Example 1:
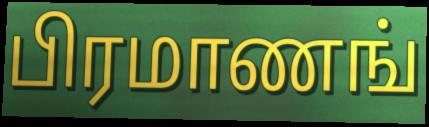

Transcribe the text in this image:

பிரமாணங்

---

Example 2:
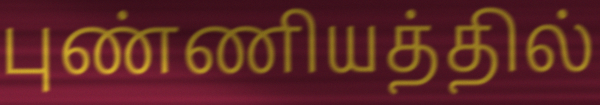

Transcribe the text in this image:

புண்ணியத்தில்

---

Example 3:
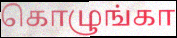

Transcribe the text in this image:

கொழுங்கா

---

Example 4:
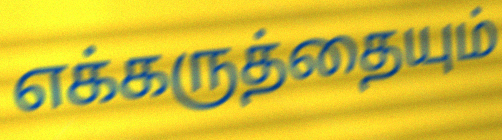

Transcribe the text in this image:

எக்கருத்தையும்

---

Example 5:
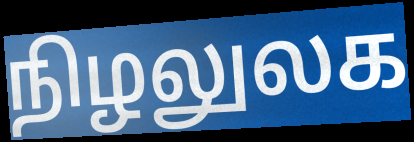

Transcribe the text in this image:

நிழலுலக